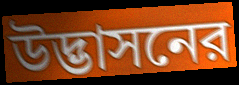
উদ্ভাসনের